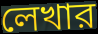
লেখার